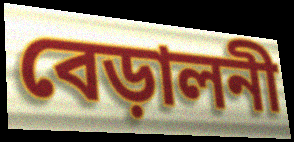
বেড়ালনী